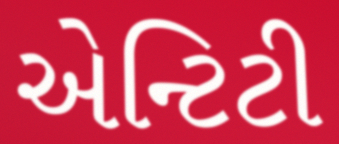
એન્ટિટી